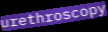
urethroscopy